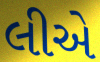
લીએ